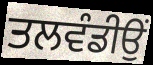
ਤਲਵੰਡੀਉਂ